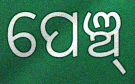
ପେଞ୍ଚ୍